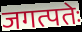
जगत्पतेः